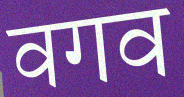
वगव